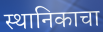
स्थानिकाचा